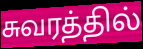
சுவரத்தில்